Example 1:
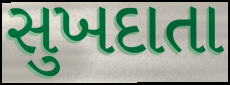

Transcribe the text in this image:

સુખદાતા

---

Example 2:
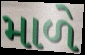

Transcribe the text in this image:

માળે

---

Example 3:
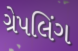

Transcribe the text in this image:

ગ્રેપલિંગ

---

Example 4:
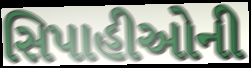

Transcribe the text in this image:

સિપાહીઓની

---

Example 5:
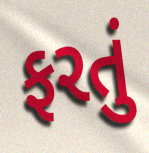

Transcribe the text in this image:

ફરતું